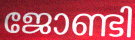
ജോണ്ടി